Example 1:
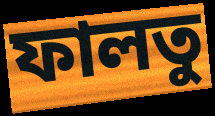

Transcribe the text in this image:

ফালতু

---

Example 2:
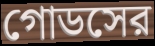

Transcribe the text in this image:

গোডসের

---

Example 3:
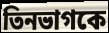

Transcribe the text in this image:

তিনভাগকে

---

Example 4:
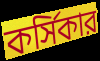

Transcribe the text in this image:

কর্সিকার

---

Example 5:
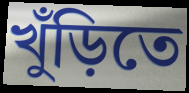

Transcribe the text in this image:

খুঁড়িতে